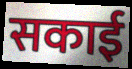
सकाई